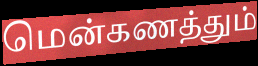
மென்கணத்தும்